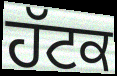
ਹੱਟਕ